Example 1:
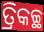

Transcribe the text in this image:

ତ୍ରିକଚ୍ଛ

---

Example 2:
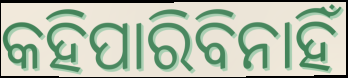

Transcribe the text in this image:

କହିପାରିବିନାହିଁ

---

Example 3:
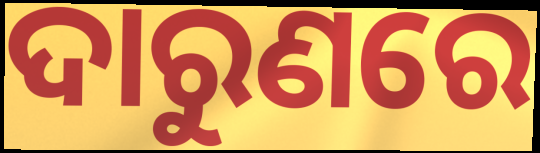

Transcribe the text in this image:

ଦାରୁଣରେ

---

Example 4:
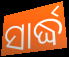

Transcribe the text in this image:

ସାର୍ଦ୍ଧ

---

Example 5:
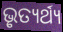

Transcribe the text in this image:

ଭୃତ୍ୟର୍ଥ୍ୟ